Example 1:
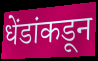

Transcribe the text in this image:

धेंडांकडून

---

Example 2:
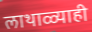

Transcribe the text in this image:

लाथाळ्याही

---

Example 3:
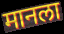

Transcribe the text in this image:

मानला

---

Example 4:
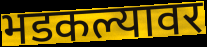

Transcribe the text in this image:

भडकल्यावर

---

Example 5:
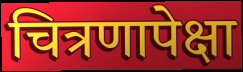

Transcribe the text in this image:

चित्रणापेक्षा